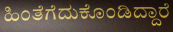
ಹಿಂತೆಗೆದುಕೊಂಡಿದ್ದಾರೆ